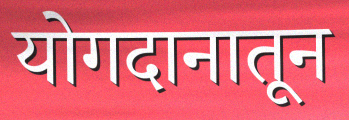
योगदानातून